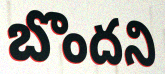
బొందని